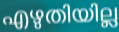
എഴുതിയില്ല